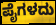
ಪೈಗಳದು